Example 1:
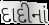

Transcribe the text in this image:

દાદીનાં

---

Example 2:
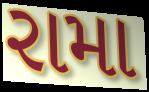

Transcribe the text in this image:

રામા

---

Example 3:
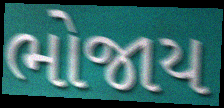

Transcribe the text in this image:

ભોજાય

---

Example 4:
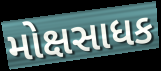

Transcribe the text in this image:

મોક્ષસાધક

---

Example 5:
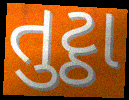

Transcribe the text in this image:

તુટ્ઠા